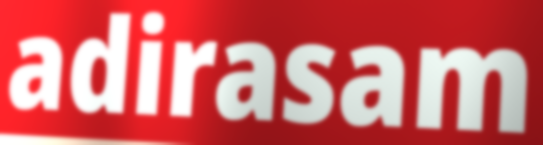
adirasam